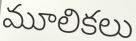
మూలికలు